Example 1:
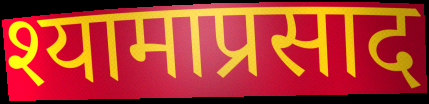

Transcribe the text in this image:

श्यामाप्रसाद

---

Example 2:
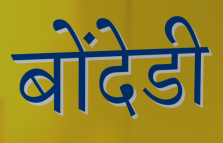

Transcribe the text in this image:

बोंदेडी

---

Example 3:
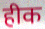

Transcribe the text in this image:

हीक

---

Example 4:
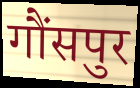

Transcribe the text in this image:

गौंसपुर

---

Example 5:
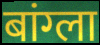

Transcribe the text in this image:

बांग्‍ला